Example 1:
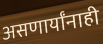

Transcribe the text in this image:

असणार्यांनाही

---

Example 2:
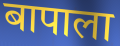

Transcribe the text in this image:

बापाला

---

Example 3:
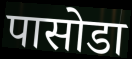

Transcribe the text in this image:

पासोडा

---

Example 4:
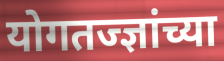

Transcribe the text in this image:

योगतज्ज्ञांच्या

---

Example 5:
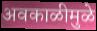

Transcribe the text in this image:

अवकाळीमुळे